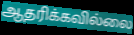
ஆதரிக்கவில்லை